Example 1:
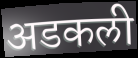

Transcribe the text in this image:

अडकली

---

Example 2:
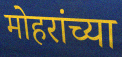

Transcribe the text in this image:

मोहरांच्या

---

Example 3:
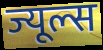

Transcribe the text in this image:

ज्यूल्स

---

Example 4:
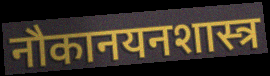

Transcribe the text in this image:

नौकानयनशास्त्र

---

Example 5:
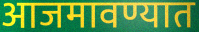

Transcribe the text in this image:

आजमावण्यात